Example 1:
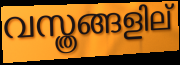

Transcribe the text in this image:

വസ്ത്രങ്ങളില്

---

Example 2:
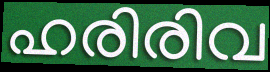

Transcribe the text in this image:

ഹരിരിവ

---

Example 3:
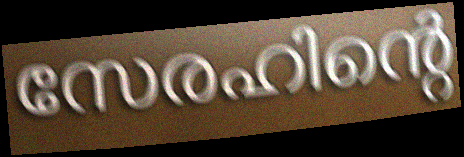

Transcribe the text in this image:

സേരഹിന്റെ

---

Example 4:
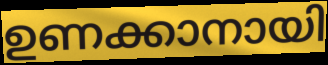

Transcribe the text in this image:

ഉണക്കാനായി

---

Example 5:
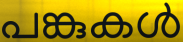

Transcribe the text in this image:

പങ്കുകൾ